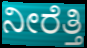
ನೀರೆತ್ತಿ